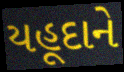
યહૂદાને